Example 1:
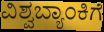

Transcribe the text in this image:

ವಿಶ್ವಬ್ಯಾಂಕಿಗೆ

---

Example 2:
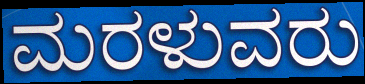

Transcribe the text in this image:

ಮರಳುವರು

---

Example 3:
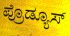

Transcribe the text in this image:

ಪ್ರೊಡ್ಯೂಸ್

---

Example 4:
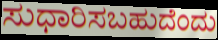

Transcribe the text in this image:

ಸುಧಾರಿಸಬಹುದೆಂದು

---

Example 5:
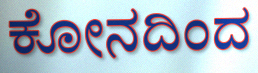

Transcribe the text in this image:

ಕೋನದಿಂದ